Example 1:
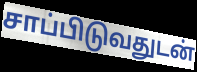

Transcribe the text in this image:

சாப்பிடுவதுடன்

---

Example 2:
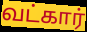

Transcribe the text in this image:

வட்கார்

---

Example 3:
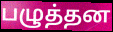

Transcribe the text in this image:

பழுத்தன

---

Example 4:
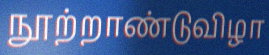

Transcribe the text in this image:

நூற்றாண்டுவிழா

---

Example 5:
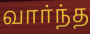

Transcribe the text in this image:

வார்ந்த